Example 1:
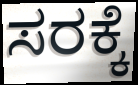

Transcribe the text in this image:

ಸರಕ್ಕೆ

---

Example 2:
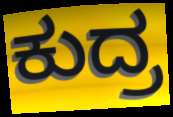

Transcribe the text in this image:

ಕುದ್ರ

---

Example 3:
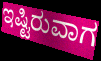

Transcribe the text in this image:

ಇಷ್ಟಿರುವಾಗ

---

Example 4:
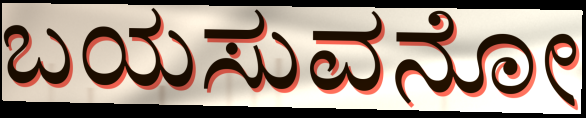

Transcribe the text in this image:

ಬಯಸುವನೋ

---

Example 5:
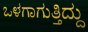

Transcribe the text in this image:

ಒಳಗಾಗುತ್ತಿದ್ದು